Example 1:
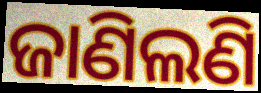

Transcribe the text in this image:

ଜାଣିଲଣି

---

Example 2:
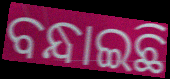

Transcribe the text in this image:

ବନ୍ଧାଇଛି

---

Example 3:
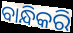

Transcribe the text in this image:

ବାନ୍ଧିକରି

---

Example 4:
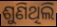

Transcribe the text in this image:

ଶୁଣିଥିଲି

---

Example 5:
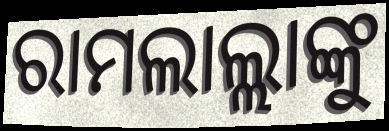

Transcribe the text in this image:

ରାମଲାଲ୍ଲାଙ୍କୁ